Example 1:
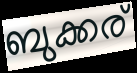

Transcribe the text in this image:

ബുക്കര്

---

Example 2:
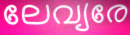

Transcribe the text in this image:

ലേവ്യരേ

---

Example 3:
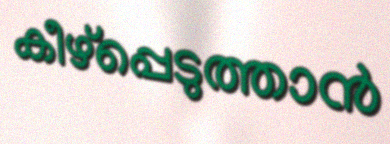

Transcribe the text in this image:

കീഴ്പ്പെടുത്താൻ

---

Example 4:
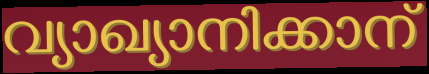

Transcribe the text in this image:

വ്യാഖ്യാനിക്കാന്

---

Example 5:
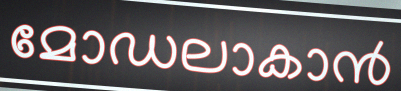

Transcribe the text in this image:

മോഡലാകാൻ